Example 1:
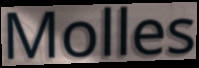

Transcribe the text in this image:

Molles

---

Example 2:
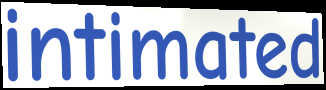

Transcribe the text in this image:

intimated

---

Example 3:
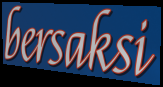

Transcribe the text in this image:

bersaksi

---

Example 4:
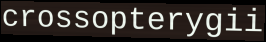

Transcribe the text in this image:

crossopterygii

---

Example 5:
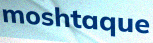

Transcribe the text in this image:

moshtaque